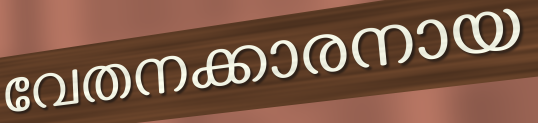
വേതനക്കാരനായ